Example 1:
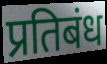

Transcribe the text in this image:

प्रतिबंध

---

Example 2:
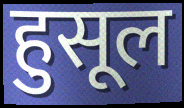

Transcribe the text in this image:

हुसूल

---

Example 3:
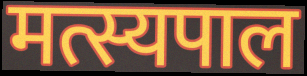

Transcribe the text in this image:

मत्स्यपाल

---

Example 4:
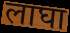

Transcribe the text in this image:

लाघा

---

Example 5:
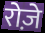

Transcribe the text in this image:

रोज़े